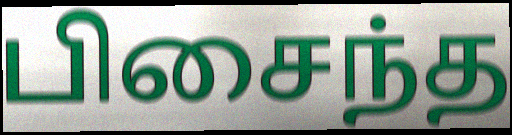
பிசைந்த